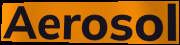
Aerosol